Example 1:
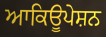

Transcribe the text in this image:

ਆਕਿਊਪੇਸ਼ਨ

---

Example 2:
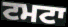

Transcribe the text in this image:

ਟਮਟਾ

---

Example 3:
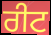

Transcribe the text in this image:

ਰੀਟ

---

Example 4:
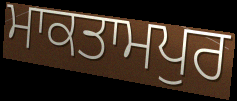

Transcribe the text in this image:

ਮਾਕਤਾਮਪੁਰ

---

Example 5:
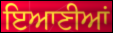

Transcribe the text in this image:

ਇਆਣੀਆਂ